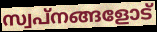
സ്വപ്നങ്ങളോട്